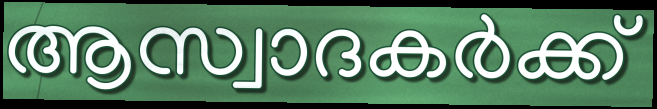
ആസ്വാദകർക്ക്